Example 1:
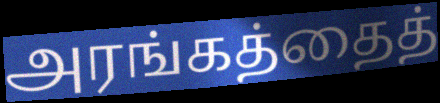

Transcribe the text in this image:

அரங்கத்தைத்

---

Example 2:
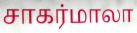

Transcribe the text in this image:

சாகர்மாலா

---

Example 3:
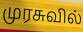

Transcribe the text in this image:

முரசுவில்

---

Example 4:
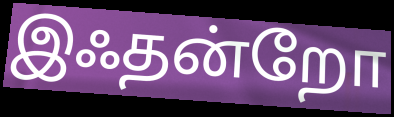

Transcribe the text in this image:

இஃதன்றோ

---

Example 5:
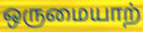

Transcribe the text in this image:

ஒருமையாற்